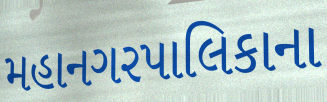
મહાનગરપાલિકાના